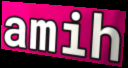
amih